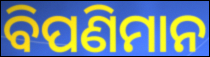
ବିପଣିମାନ